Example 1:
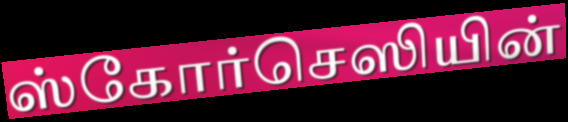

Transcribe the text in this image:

ஸ்கோர்செஸியின்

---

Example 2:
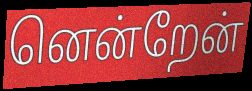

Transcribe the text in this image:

னென்றேன்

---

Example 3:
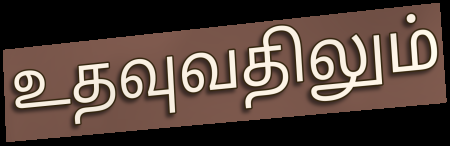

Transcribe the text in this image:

உதவுவதிலும்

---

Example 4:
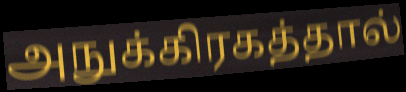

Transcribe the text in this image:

அநுக்கிரகத்தால்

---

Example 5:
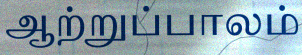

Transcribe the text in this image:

ஆற்றுப்பாலம்